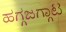
ಹಗ್ಗಜಗ್ಗಾಟ